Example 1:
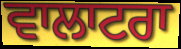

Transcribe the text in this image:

ਵਾਲਾਟਰਾ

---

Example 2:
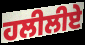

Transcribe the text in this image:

ਹਲੀਲੀਏ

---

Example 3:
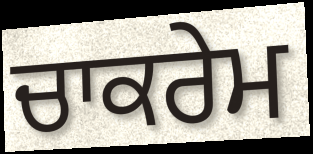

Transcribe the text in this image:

ਚਾਕਰੇਮ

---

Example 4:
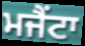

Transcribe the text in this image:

ਮਜੈਂਟਾ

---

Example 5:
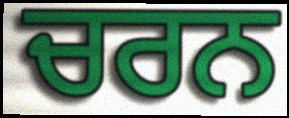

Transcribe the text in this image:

ਚਰਨ